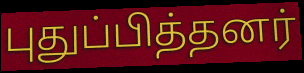
புதுப்பித்தனர்